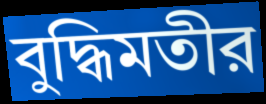
বুদ্ধিমতীর